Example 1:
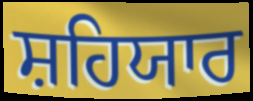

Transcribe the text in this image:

ਸ਼ਹਿਯਾਰ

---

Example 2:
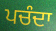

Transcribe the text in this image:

ਪਚੰਦਾ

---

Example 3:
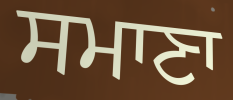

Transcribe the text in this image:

ਸਮਾਣਾ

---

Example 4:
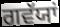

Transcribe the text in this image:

ਗਵੱਯਾਂ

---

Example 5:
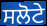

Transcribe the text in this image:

ਸਲੋਟੇ